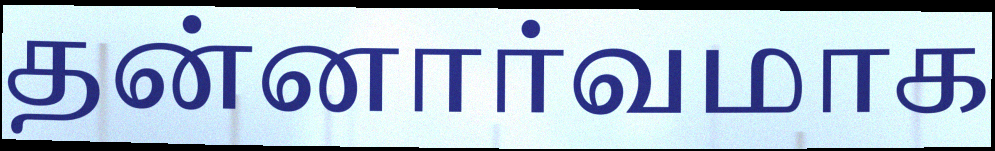
தன்னார்வமாக